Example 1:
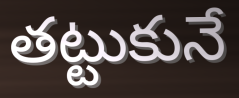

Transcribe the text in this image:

తట్టుకునే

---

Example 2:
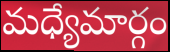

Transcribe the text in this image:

మధ్యేమార్గం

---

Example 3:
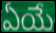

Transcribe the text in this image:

ఏయే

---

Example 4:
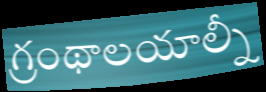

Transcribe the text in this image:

గ్రంథాలయాల్నీ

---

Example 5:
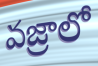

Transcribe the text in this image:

వజ్రాలో